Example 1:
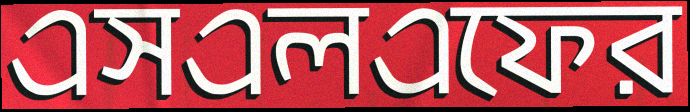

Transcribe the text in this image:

এসএলএফের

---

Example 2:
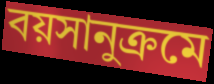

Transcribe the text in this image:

বয়সানুক্রমে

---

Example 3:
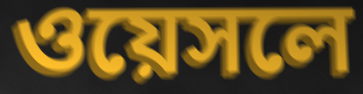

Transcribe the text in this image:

ওয়েসলে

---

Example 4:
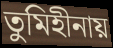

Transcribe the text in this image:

তুমিহীনায়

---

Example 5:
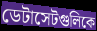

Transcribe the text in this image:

ডেটাসেটগুলিকে